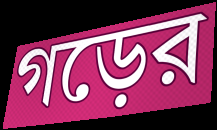
গড়ের